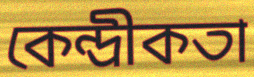
কেন্দ্রীকতা